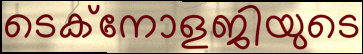
ടെക്നോളജിയുടെ